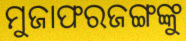
ମୁଜାଫରଜଙ୍ଗଙ୍କୁ